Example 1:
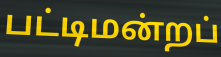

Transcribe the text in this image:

பட்டிமன்றப்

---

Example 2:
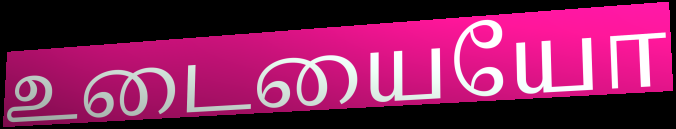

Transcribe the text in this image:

உடையையோ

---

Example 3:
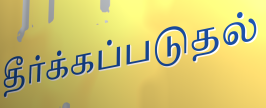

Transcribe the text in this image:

தீர்க்கப்படுதல்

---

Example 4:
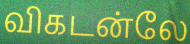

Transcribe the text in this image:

விகடன்லே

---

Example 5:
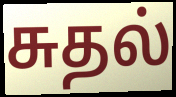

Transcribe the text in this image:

சுதல்